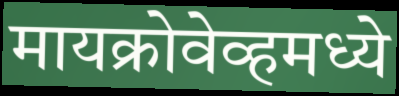
मायक्रोवेव्हमध्ये